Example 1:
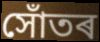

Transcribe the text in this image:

সোঁতৰ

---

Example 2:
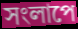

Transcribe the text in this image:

সংলাপে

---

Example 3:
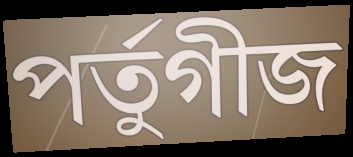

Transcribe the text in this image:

পৰ্তুগীজ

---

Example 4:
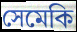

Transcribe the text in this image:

সেমেকি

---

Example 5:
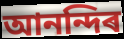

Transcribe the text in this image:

আনন্দিৰ